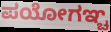
ಪಯೋಗಞ್ಚ